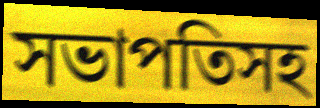
সভাপতিসহ